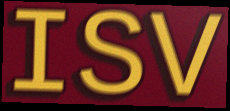
ISV